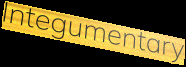
Integumentary